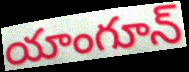
యాంగూన్